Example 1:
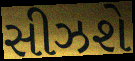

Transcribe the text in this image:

સીઝશે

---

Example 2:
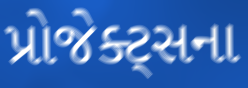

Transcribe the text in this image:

પ્રોજેક્ટ્સના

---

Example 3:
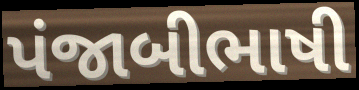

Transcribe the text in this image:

પંજાબીભાષી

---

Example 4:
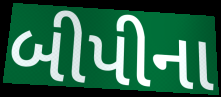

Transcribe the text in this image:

બીપીના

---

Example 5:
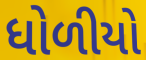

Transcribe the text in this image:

ધોળીયો